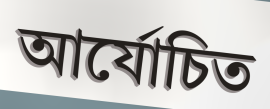
আর্যোচিত